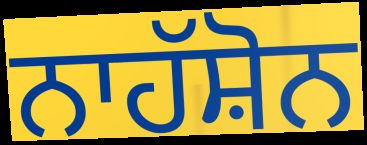
ਨਾਹੱਸ਼ੋਨ